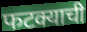
फटक्याची